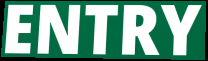
ENTRY